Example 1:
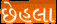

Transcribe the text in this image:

છેહલા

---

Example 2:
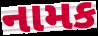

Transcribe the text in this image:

નામક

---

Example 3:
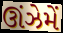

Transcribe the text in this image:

ઊંઝેમેં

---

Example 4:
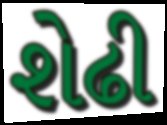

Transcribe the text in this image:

શેઢી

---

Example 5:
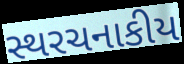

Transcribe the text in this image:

સ્થરચનાકીય